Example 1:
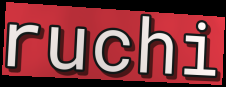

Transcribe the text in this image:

ruchi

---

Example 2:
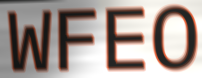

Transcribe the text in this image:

WFEO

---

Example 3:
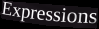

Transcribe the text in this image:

Expressions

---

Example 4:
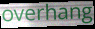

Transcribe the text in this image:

overhang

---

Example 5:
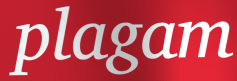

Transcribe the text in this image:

plagam